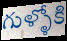
గుళ్ళోకి